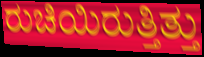
ರುಚಿಯಿರುತ್ತಿತ್ತು